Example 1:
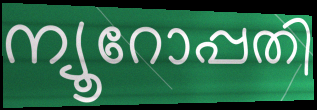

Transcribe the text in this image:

ന്യൂറോപ്പതി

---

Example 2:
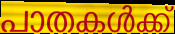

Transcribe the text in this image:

പാതകൾക്ക്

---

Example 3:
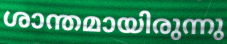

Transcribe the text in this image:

ശാന്തമായിരുന്നു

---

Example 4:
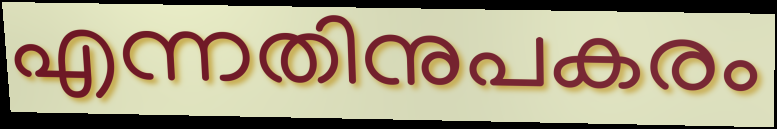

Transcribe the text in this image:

എന്നതിനുപകരം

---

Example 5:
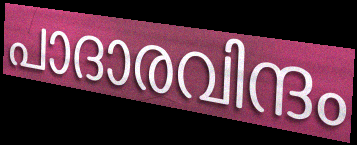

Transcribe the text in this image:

പാദാരവിന്ദം